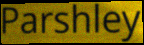
Parshley